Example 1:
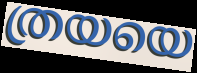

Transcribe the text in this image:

ത്രയയെ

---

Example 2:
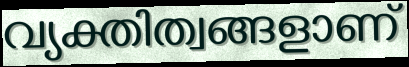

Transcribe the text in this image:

വ്യക്തിത്വങ്ങളാണ്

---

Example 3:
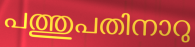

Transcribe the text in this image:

പത്തുപതിനാറു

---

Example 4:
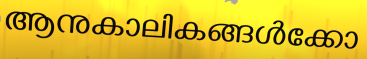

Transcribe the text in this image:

ആനുകാലികങ്ങൾക്കോ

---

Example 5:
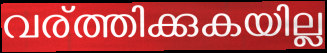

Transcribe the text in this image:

വര്ത്തിക്കുകയില്ല